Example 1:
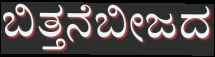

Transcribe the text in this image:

ಬಿತ್ತನೆಬೀಜದ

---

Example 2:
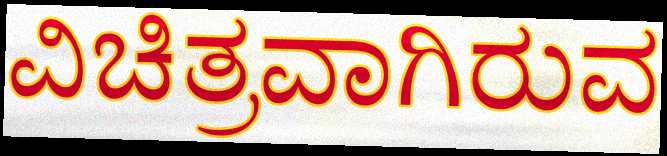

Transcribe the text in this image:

ವಿಚಿತ್ರವಾಗಿರುವ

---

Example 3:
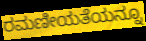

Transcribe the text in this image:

ರಮಣೀಯತೆಯನ್ನೂ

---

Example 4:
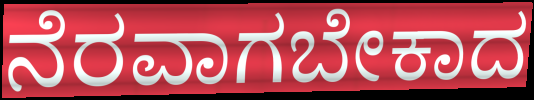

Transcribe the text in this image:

ನೆರವಾಗಬೇಕಾದ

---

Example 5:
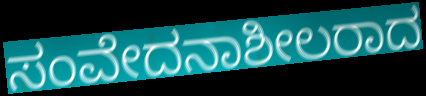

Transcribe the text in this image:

ಸಂವೇದನಾಶೀಲರಾದ